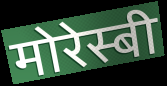
मोरेस्बी